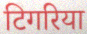
टिगरिया